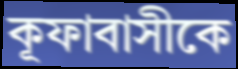
কূফাবাসীকে